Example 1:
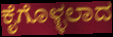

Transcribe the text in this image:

ಕೈಗೊಳ್ಳಲಾದ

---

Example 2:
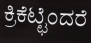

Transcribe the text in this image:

ಕ್ರಿಕೆಟ್ಟೆಂದರೆ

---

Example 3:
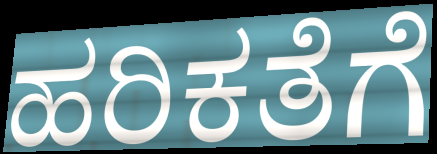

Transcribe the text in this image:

ಹರಿಕತೆಗೆ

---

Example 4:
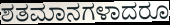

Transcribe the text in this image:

ಶತಮಾನಗಳಾದರೂ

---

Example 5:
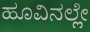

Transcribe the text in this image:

ಹೂವಿನಲ್ಲೇ